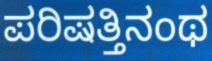
ಪರಿಷತ್ತಿನಂಥ